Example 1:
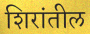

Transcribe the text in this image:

शिरांतील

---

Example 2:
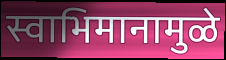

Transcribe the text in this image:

स्वाभिमानामुळे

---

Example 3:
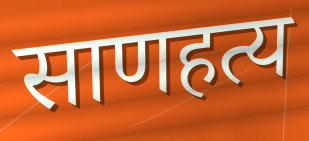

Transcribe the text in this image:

साणहत्य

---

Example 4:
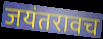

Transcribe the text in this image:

जयंतरावच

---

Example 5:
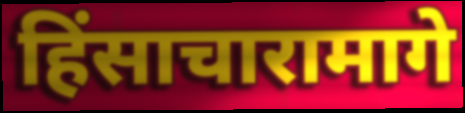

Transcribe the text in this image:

हिंसाचारामागे